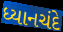
ધ્યાનચંદે